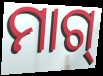
ମାଗ୍